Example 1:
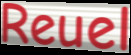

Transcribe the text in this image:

Reuel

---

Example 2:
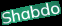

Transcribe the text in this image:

Shabdo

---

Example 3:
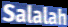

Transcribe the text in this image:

Salalah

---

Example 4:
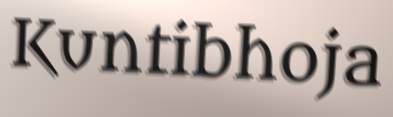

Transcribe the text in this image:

Kuntibhoja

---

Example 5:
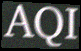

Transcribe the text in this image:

AQI